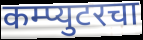
कम्प्युटरचा